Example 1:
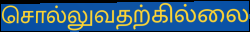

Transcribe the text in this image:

சொல்லுவதற்கில்லை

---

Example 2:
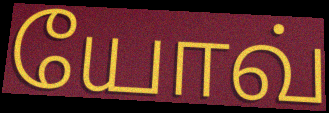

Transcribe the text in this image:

யோவ்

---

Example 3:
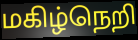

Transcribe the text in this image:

மகிழ்நெறி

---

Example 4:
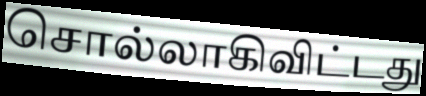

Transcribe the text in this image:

சொல்லாகிவிட்டது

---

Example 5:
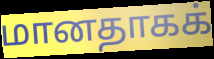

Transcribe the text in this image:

மானதாகக்